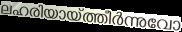
ലഹരിയായ്ത്തീർന്നുവോ